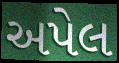
અપેલ